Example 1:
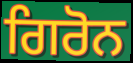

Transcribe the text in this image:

ਗਿਰੋਨ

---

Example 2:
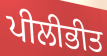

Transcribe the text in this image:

ਪੀਲੀਭੀਤ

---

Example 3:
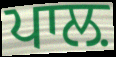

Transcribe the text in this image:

ਪਾਲ਼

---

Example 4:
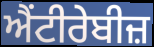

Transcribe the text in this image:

ਐਂਟੀਰੇਬੀਜ਼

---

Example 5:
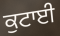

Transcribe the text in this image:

ਕੁਟਾਈ